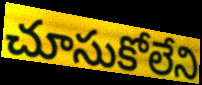
చూసుకోలేని